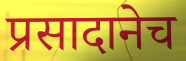
प्रसादानेच